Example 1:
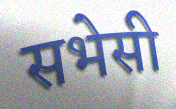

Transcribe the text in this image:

सभेसी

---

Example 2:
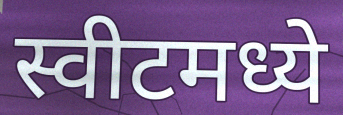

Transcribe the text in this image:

स्वीटमध्ये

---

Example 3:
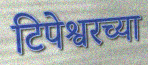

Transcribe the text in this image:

टिपेश्वरच्या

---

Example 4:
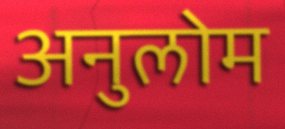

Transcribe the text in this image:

अनुलोम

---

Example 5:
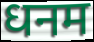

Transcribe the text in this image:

धनम